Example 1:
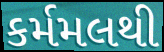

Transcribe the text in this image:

કર્મમલથી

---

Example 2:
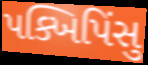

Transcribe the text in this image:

પક્ખિપિંસુ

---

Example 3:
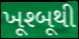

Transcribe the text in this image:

ખૂશ્બૂથી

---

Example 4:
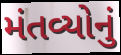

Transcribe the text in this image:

મંતવ્યોનું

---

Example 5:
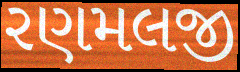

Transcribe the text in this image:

રણમલજી